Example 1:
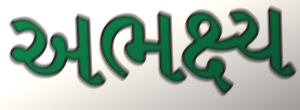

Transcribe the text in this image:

અભક્ષ્ય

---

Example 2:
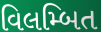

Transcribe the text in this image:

વિલમ્બિત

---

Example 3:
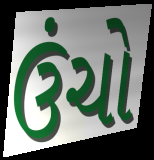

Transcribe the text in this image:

ઉંચો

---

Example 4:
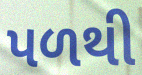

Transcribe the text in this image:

પળથી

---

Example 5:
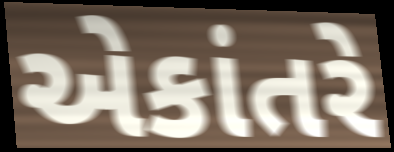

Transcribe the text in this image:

એકાંતરે